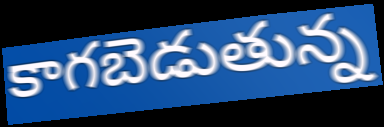
కాగబెడుతున్న